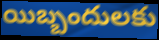
యిబ్బందులకు